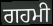
ਗਹਮੀ